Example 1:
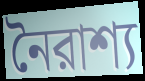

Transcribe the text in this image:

নৈরাশ্য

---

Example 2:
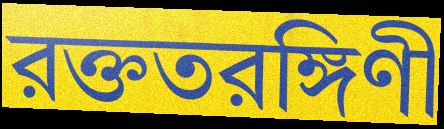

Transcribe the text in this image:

রক্ততরঙ্গিণী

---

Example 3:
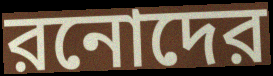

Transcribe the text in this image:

রনোদের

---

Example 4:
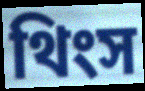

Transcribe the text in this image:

থিংস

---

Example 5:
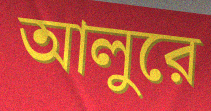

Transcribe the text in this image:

আলুরে